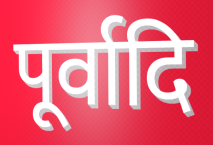
पूर्वादि